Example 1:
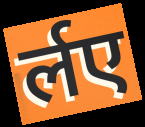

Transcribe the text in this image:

र्लए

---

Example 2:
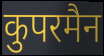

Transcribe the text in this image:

कुपरमैन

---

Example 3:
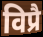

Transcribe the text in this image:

विप्रै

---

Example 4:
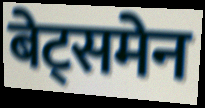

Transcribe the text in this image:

बेट्समेन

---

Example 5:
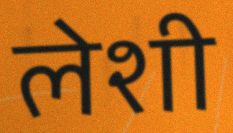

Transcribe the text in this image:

लेशी